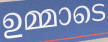
ഉമ്മാടെ